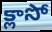
క్లాసో